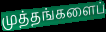
முத்தங்களைப்